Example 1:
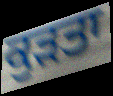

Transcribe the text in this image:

ਕੁੜਤਾ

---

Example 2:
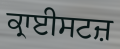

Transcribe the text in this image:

ਕ੍ਰਾਈਸਟਜ਼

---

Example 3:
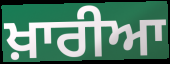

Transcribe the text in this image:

ਖ਼ਾਰੀਆ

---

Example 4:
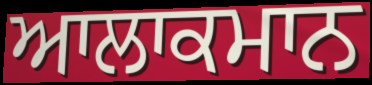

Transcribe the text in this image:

ਆਲਾਕਮਾਨ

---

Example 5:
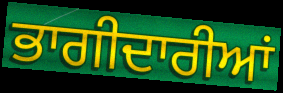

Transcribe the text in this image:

ਭਾਗੀਦਾਰੀਆਂ